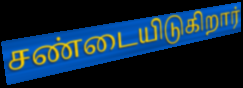
சண்டையிடுகிறார்